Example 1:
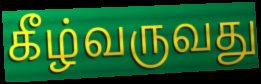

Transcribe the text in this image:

கீழ்வருவது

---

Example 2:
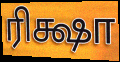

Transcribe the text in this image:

ரிக்ஷா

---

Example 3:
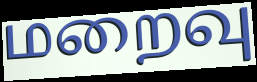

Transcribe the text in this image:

மறைவு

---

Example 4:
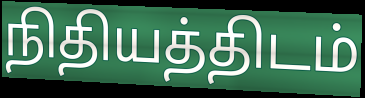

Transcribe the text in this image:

நிதியத்திடம்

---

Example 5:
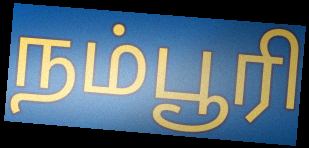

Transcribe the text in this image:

நம்பூரி